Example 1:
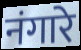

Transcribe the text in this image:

नंगारे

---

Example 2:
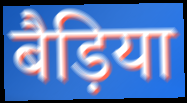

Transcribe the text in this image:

बैड़िया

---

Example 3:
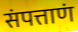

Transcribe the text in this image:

संपत्ताणं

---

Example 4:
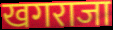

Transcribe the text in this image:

खगराजा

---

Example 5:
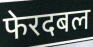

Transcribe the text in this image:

फेरदबल